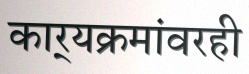
कार्यक्रमांवरही